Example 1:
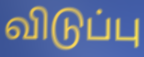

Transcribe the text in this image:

விடுப்பு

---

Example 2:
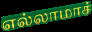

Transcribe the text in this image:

எல்லாமாச்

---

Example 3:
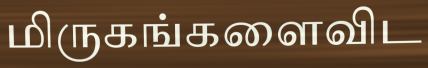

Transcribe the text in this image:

மிருகங்களைவிட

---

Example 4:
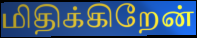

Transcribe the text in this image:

மிதிக்கிறேன்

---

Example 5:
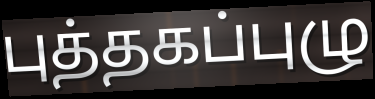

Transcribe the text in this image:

புத்தகப்புழு